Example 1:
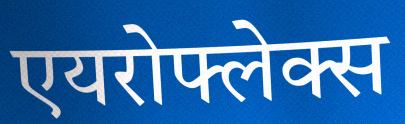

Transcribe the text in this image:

एयरोफ्लेक्स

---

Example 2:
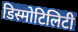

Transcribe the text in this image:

डिस्मोटिलिटी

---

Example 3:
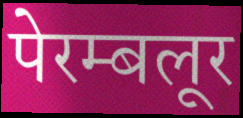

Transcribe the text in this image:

पेरम्बलूर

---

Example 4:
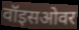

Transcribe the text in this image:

वॉइसओवर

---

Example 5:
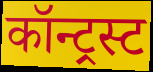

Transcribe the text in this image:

कॉन्ट्रस्ट